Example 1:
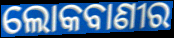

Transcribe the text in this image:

ଲୋକବାଣୀର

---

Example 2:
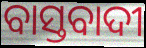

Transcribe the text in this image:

ବାସ୍ତବାଦୀ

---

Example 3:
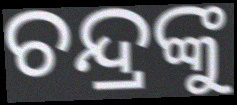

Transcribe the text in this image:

ଚନ୍ଦ୍ରଙ୍କୁ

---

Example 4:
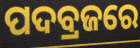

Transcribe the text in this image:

ପଦବ୍ରଜରେ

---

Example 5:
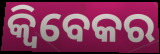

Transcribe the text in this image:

କ୍ୱିବେକର